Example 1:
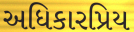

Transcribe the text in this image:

અધિકારપ્રિય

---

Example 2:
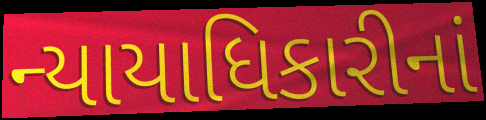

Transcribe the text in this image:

ન્યાયાધિકારીનાં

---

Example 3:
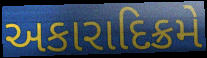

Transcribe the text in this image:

અકારાદિક્રમે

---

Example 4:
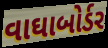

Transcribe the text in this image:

વાઘાબોર્ડર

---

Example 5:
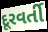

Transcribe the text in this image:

દૂરવર્તી